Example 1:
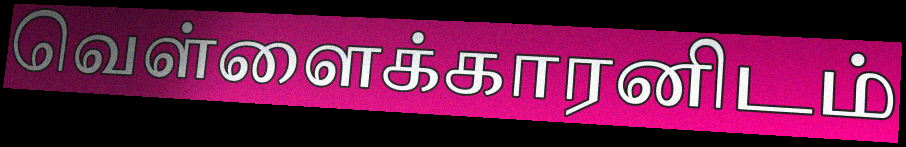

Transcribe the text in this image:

வெள்ளைக்காரனிடம்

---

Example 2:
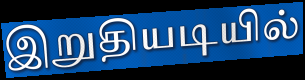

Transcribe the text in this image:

இறுதியடியில்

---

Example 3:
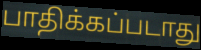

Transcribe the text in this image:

பாதிக்கப்படாது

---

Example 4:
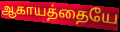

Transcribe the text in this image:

ஆகாயத்தையே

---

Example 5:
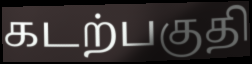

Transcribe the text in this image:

கடற்பகுதி